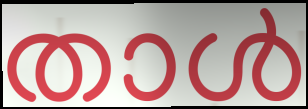
താൾ